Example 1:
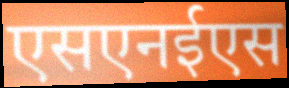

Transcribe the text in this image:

एसएनईएस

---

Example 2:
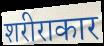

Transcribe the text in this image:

शरीराकार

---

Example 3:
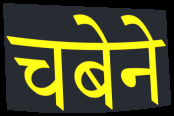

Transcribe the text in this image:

चबेने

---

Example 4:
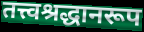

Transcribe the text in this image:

तत्त्वश्रद्धानरूप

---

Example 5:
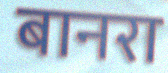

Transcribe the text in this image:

बानरा